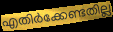
എതിർക്കേണ്ടതില്ല